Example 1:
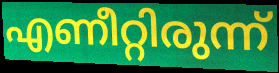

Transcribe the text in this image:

എണീറ്റിരുന്ന്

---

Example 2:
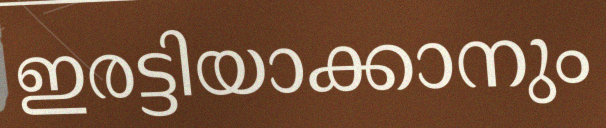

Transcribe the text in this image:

ഇരട്ടിയാക്കാനും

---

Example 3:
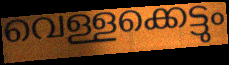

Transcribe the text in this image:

വെള്ളക്കെട്ടും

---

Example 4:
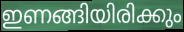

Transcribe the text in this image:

ഇണങ്ങിയിരിക്കും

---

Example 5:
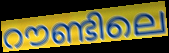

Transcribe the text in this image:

റൗണ്ടിലെ